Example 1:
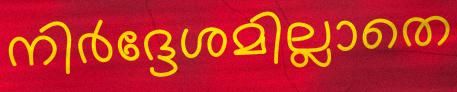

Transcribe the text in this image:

നിർദ്ദേശമില്ലാതെ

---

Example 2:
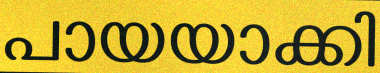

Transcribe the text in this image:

പായയാക്കി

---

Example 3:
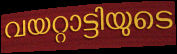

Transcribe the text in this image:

വയറ്റാട്ടിയുടെ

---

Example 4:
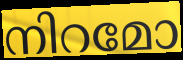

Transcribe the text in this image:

നിറമോ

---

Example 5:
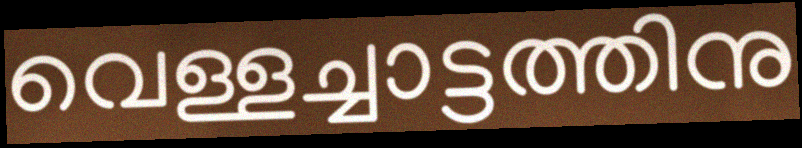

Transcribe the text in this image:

വെള്ളച്ചാട്ടത്തിനു